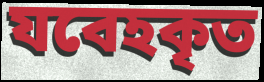
যবেহকৃত